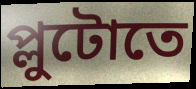
প্লুটোতে